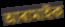
আৰামাইক